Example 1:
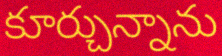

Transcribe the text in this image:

కూర్చున్నాను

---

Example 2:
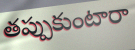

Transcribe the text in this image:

తప్పుకుంటారా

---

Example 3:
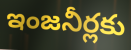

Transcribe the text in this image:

ఇంజనీర్లకు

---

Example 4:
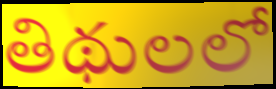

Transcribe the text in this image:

తిథులలో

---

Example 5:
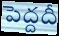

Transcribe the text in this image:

పెద్దదీ